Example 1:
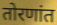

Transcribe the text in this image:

तोरणांत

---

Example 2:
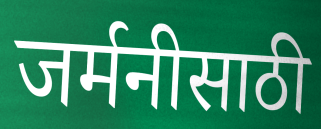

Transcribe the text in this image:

जर्मनीसाठी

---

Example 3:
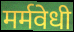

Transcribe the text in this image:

मर्मवेधी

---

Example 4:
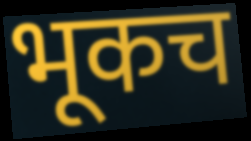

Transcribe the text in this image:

भूकच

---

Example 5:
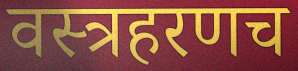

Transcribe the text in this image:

वस्त्रहरणच